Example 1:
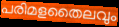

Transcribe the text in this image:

പരിമളതൈലവും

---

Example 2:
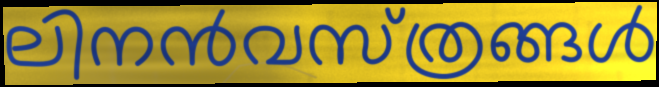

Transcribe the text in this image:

ലിനൻവസ്‌ത്രങ്ങൾ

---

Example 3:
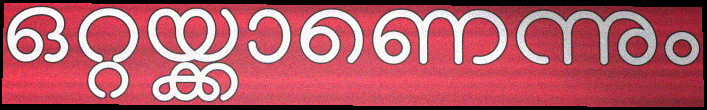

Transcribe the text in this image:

ഒറ്റയ്ക്കാണെന്നും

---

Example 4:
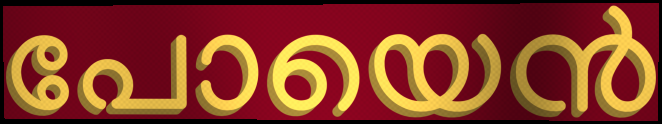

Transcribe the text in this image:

പോയെൻ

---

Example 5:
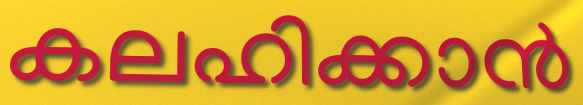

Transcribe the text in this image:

കലഹിക്കാൻ